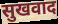
सुखवाद